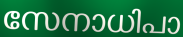
സേനാധിപാ